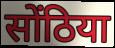
सोंठिया